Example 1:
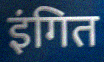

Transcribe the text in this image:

इंगित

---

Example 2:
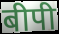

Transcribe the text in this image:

बीपी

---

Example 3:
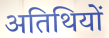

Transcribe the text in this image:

अतिथियों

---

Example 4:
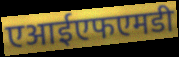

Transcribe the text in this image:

एआईएफएमडी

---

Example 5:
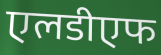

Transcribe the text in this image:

एलडीएफ